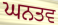
ਘਨਤਵ